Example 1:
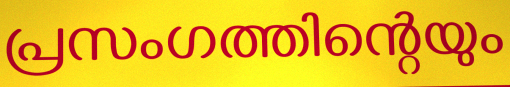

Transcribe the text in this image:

പ്രസംഗത്തിന്റെയും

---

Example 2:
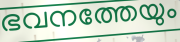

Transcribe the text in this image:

ഭവനത്തേയും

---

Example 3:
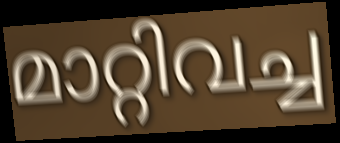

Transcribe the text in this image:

മാറ്റിവച്ച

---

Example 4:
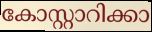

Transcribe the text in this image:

കോസ്റ്റാറിക്കാ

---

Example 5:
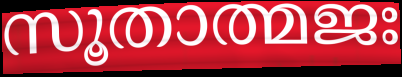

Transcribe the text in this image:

സൂതാത്മജഃ